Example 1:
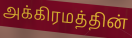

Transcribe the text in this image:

அக்கிரமத்தின்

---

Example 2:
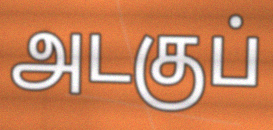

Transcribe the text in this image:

அடகுப்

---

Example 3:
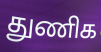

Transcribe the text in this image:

துணிக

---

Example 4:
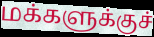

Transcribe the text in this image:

மக்களுக்குச்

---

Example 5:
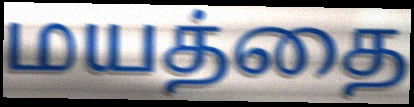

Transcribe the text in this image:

மயத்தை